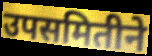
उपसमितीने